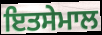
ਇਤਸੇਮਾਲ